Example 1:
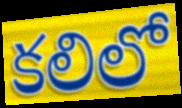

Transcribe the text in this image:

కలిలో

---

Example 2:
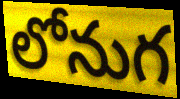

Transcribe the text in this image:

లోనుగ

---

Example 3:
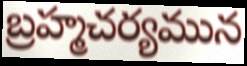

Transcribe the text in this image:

బ్రహ్మచర్యమున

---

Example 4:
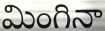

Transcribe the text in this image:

మింగినా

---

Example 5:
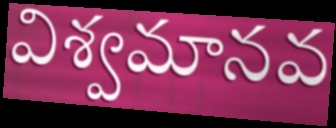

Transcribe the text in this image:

విశ్వమానవ